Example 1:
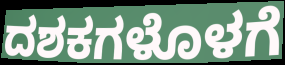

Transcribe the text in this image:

ದಶಕಗಳೊಳಗೆ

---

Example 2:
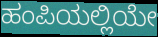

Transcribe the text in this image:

ಹಂಪಿಯಲ್ಲಿಯೇ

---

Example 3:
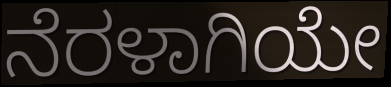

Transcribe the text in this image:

ನೆರಳಾಗಿಯೇ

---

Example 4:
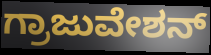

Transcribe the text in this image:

ಗ್ರಾಜುವೇಶನ್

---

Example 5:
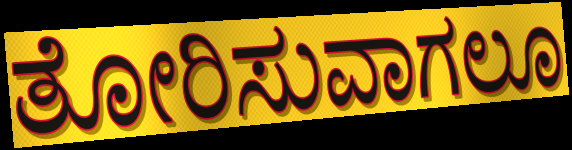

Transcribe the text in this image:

ತೋರಿಸುವಾಗಲೂ